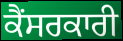
ਕੈਂਸਰਕਾਰੀ